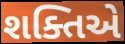
શક્તિએ